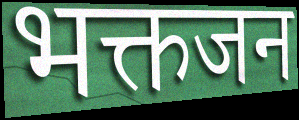
भक्तजन